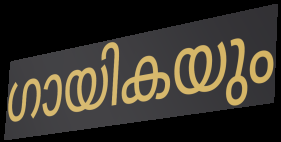
ഗായികയും